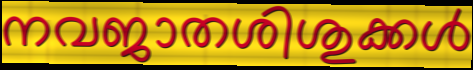
നവജാതശിശുക്കൾ